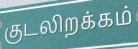
குடலிறக்கம்